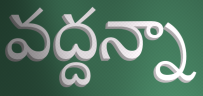
వద్దన్నా